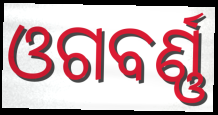
ଓଗବର୍ଣ୍ଣ